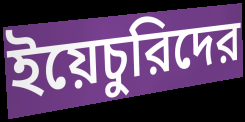
ইয়েচুরিদের